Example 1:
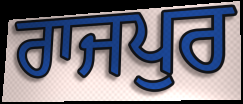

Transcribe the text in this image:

ਰਾਜਪੁਰ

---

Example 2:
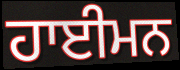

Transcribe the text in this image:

ਹਾਈਮਨ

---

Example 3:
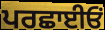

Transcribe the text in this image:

ਪਰਛਾਈਓਂ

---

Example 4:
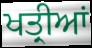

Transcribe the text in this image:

ਖਤ੍ਰੀਆਂ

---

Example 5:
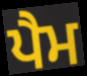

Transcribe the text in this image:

ਪੈਮ